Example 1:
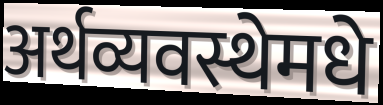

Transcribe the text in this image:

अर्थव्यवस्थेमधे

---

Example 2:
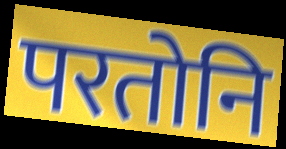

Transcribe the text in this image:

परतोनि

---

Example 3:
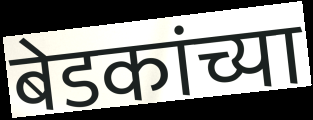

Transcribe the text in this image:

बेडकांच्या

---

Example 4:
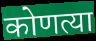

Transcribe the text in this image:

कोणत्या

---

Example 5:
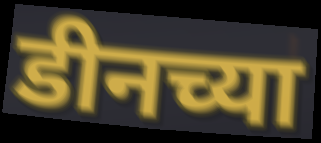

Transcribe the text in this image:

डीनच्या